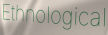
Ethnological